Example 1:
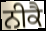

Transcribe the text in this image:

ਨੀਕੈ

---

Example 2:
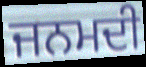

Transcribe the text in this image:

ਜਨਮਦੀ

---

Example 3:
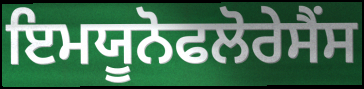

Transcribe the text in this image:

ਇਮਯੂਨੋਫਲੋਰੇਸੈਂਸ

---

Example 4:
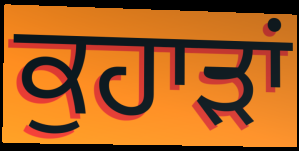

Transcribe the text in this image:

ਕੁਹਾੜਾਂ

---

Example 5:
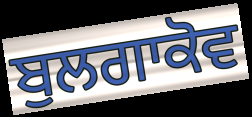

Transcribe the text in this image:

ਬੁਲਗਾਕੋਵ